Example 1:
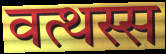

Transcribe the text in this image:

वत्थस्स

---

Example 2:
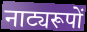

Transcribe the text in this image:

नाट्यरूपों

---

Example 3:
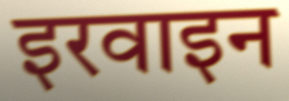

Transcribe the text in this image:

इरवाइन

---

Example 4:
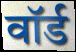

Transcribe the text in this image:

वॉर्ड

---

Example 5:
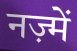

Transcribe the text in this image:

नज़्में